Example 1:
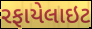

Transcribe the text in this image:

રફાયેલાઇટ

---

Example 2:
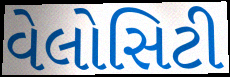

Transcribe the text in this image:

વેલોસિટી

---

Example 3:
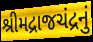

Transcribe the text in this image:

શ્રીમદ્રાજચંદ્રનું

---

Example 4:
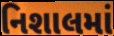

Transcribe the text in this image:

નિશાલમાં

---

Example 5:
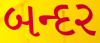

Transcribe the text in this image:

બન્દર